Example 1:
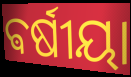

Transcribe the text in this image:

ଵର୍ଷୀୟା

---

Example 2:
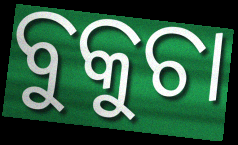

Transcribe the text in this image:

ବୁକୁଚା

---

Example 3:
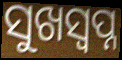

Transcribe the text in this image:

ସୁଖସ୍ୱପ୍ନ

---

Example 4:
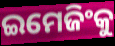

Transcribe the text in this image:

ଇମେଜିଂକୁ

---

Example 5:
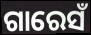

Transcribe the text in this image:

ଗାରେସଁ